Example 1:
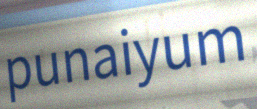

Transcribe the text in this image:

punaiyum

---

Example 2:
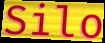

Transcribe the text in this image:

Silo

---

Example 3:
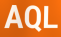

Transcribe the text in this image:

AQL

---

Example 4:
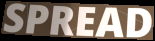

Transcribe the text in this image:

SPREAD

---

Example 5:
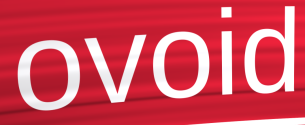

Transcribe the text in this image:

ovoid